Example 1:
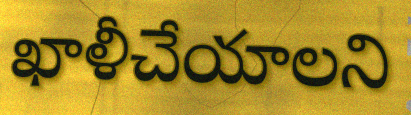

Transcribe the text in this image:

ఖాళీచేయాలని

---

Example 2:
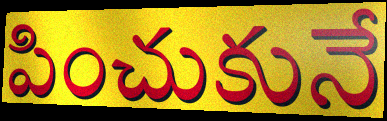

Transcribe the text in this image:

పించుకునే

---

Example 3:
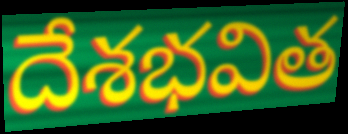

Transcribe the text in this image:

దేశభవిత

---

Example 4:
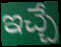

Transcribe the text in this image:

ఇచ్చే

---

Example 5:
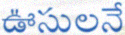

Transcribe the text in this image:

ఊసులనే